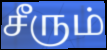
சீரும்